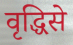
वृद्धिसे